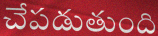
చేపడుతుంది